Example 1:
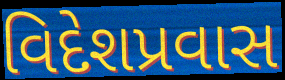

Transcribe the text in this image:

વિદેશપ્રવાસ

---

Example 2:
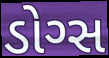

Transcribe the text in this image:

ડોગ્સ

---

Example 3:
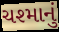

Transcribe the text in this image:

ચશ્માનું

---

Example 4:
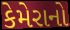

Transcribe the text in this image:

કેમેરાનો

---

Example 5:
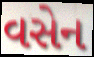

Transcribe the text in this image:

વસેન